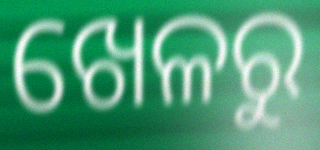
ଖେଳରୁ